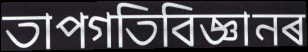
তাপগতিবিজ্ঞানৰ